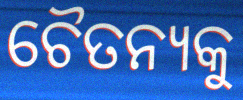
ଚୈତନ୍ୟକୁ